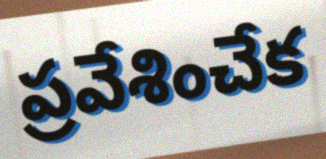
ప్రవేశించేక